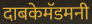
दाबकेमॅडमनी